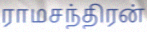
ராமசந்திரன்